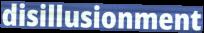
disillusionment